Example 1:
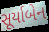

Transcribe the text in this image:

સૂર્યાબેન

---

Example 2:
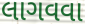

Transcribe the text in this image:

લાગવવા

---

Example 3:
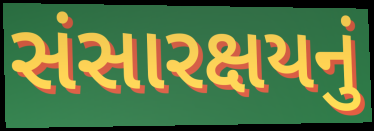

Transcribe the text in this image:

સંસારક્ષયનું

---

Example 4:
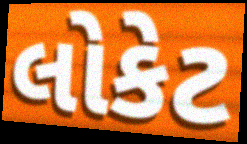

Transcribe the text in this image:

લોકેટ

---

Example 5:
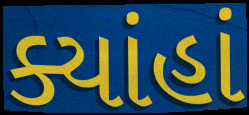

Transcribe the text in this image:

ક્યાંહાં